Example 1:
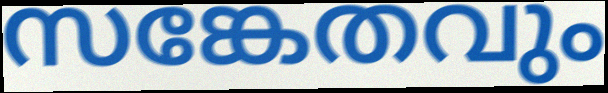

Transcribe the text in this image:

സങ്കേതവും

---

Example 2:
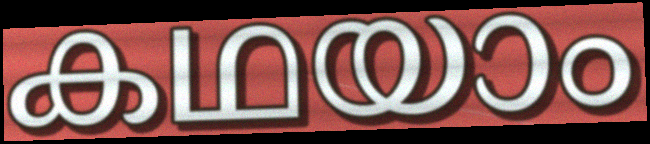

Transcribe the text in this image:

കഥയാം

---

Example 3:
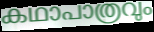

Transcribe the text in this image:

കഥാപാത്രവും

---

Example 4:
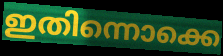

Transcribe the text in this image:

ഇതിന്നൊക്കെ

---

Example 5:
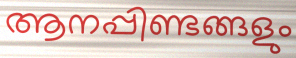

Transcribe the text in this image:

ആനപ്പിണ്ടങ്ങളും